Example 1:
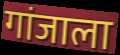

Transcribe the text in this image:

गांजाला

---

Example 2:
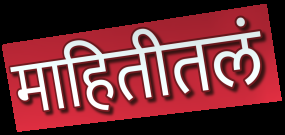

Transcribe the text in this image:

माहितीतलं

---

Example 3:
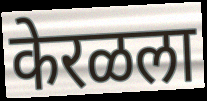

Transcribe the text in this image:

केरळला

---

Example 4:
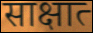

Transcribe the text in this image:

साक्षात्‍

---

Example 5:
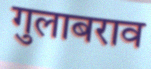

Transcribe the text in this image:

गुलाबराव